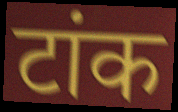
टांक